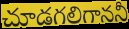
చూడగలిగాననీ